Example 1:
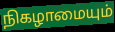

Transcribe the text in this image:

நிகழாமையும்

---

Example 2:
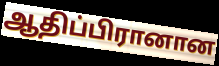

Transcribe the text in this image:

ஆதிப்பிரானான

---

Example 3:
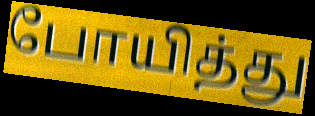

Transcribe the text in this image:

போயித்து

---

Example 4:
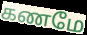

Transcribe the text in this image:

கணமே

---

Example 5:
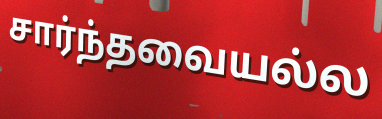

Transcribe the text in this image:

சார்ந்தவையல்ல